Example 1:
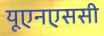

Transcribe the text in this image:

यूएनएससी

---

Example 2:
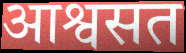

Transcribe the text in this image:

आश्वसत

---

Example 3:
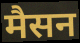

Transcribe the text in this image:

मैसन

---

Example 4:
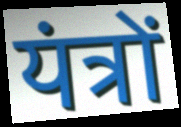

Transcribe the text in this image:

यंत्रों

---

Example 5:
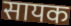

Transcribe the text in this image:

सायक